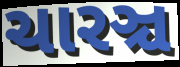
ચારઞ્ચ